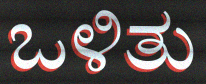
ಒಳಿತು